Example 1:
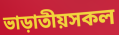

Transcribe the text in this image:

ভাড়াতীয়সকল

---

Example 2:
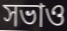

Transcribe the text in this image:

সভাও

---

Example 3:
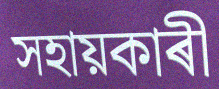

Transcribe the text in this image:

সহায়কাৰী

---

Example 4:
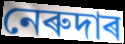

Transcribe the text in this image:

নেৰুদাৰ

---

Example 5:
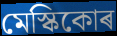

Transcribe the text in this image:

মেস্কিকোৰ